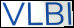
VLBI